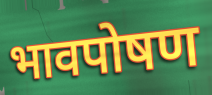
भावपोषण